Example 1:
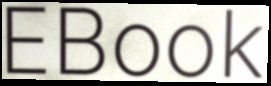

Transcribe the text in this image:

EBook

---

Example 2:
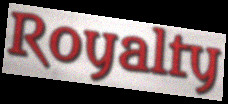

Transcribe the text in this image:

Royalty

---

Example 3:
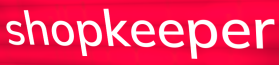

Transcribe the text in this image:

shopkeeper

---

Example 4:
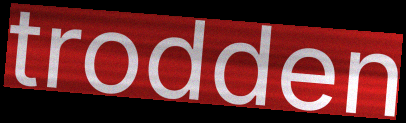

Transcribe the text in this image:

trodden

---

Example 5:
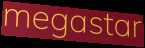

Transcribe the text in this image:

megastar